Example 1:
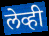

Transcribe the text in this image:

लेव्ही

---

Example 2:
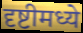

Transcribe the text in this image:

दृष्टीमध्ये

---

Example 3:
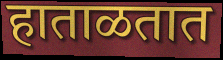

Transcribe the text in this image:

हाताळतात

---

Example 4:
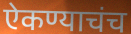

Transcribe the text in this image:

ऐकण्याचंच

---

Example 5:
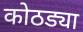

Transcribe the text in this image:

कोठड्या